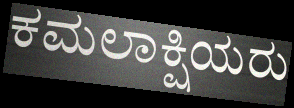
ಕಮಲಾಕ್ಷಿಯರು